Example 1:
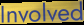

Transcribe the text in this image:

Involved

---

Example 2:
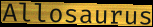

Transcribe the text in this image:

Allosaurus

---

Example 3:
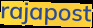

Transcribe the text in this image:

rajapost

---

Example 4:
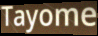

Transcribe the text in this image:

Tayome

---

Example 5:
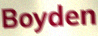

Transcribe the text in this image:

Boyden